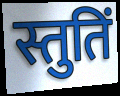
स्तुतिं